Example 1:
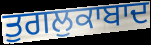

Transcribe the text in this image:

ਤੁਗਲੁਕਾਬਾਦ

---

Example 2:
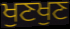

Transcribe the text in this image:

ਖੁਣਖੁਣ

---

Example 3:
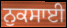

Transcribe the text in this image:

ਨੁਕਸਾਈ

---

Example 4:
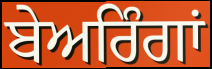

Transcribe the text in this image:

ਬੇਅਰਿੰਗਾਂ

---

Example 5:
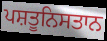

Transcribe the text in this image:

ਪਸ਼ਤੂਨਿਸਤਾਨ